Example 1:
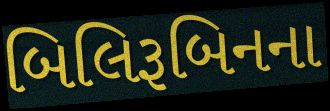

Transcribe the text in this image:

બિલિરૂબિનના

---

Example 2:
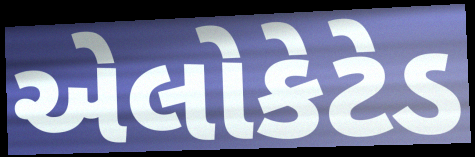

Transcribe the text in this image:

એલોકેટેડ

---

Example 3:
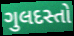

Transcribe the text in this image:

ગુલદસ્તો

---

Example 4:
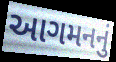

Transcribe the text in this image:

આગમનનું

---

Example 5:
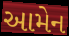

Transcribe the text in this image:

આમેન